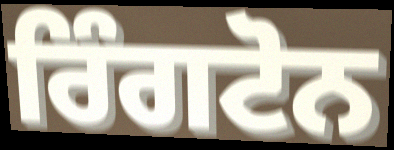
ਰਿੰਗਟੋਨ